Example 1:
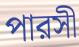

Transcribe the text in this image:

পারসী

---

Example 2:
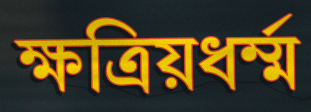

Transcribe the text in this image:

ক্ষত্রিয়ধর্ম্ম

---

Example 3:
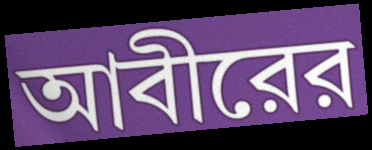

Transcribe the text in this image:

আবীরের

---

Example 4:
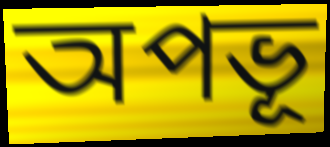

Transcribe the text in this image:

অপভূ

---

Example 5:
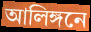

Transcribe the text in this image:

আলিঙ্গনে